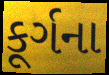
કૂર્ગના